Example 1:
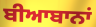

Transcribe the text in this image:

ਬੀਆਬਾਨਾਂ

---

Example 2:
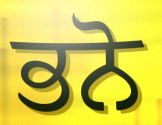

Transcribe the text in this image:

ਭਨੋ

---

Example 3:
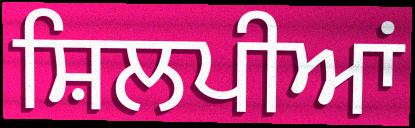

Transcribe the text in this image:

ਸ਼ਿਲਪੀਆਂ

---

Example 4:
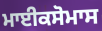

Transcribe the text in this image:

ਮਾਈਕਸੋਮਾਸ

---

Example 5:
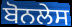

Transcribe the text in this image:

ਬੋਨਲੇਸ